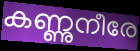
കണ്ണുനീരേ